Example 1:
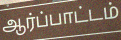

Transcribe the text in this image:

ஆர்ப்பாட்டம்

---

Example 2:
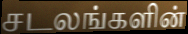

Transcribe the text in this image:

சடலங்களின்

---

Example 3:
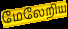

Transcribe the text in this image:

மேலேறிய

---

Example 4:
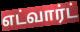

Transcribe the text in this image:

எட்வார்ட்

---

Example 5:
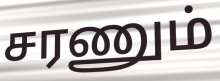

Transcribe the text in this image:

சரணும்